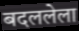
बदललेला